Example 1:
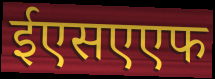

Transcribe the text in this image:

ईएसएएफ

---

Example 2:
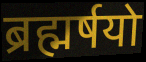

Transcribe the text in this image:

ब्रह्मर्षयो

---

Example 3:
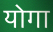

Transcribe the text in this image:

योगा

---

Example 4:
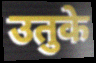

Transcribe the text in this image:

उतुके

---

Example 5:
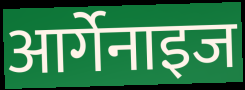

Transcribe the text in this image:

आर्गेनाइज